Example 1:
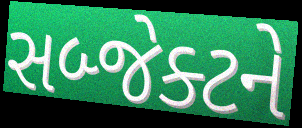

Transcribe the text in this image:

સબ્જેક્ટને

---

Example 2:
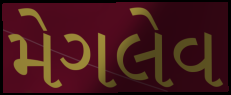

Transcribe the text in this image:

મેગલેવ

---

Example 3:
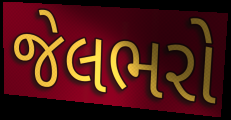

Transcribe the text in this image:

જેલભરો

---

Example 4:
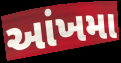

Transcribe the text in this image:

આંખમા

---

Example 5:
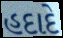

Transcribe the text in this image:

હદાદે